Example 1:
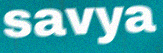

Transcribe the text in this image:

savya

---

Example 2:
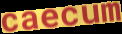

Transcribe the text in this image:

caecum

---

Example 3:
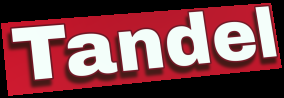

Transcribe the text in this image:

Tandel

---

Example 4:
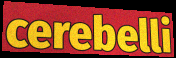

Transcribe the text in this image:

cerebelli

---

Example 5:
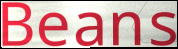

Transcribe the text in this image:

Beans